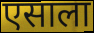
एसाला